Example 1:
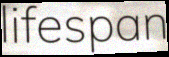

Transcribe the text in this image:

lifespan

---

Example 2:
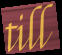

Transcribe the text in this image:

till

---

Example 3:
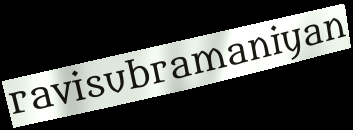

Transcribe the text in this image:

ravisubramaniyan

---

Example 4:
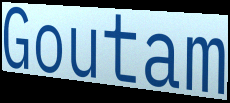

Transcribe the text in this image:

Goutam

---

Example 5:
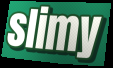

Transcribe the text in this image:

slimy